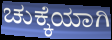
ಚುಕ್ಕೆಯಾಗಿ